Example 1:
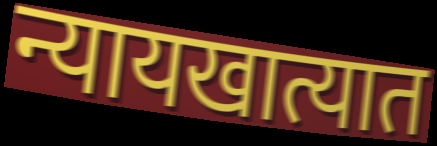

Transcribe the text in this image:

न्यायखात्यात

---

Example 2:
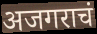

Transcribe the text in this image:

अजगराचं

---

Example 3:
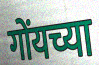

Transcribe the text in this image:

गोंयच्या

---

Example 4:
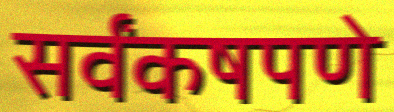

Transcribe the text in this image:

सर्वंकषपणे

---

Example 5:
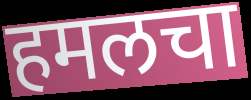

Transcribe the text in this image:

हमलचा